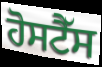
ਹੋਸਟੈੱਸ